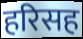
हरिसह